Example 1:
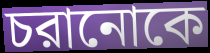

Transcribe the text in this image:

চরানোকে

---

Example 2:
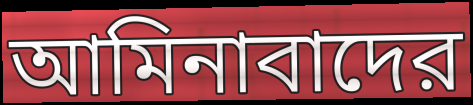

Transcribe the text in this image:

আমিনাবাদের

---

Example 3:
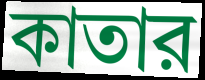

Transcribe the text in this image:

কাতার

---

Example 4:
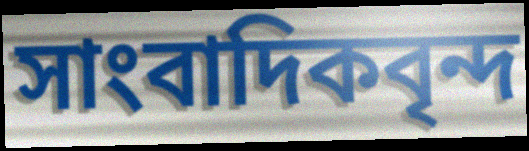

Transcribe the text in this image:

সাংবাদিকবৃন্দ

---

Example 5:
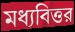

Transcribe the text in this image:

মধ্যবিত্তর